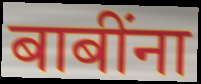
बाबींना